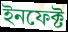
ইনফেক্ট